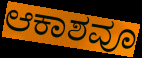
ಆಕಾಶವೂ